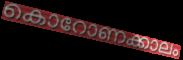
കൊറോണക്കാലം